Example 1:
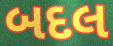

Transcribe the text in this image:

બદલ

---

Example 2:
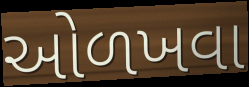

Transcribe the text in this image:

ઓળખવા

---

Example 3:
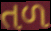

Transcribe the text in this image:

તળ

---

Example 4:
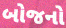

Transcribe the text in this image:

બોજનો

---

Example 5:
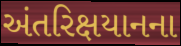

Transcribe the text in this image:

અંતરિક્ષયાનના